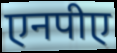
एनपीए